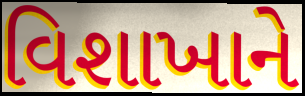
વિશાખાને